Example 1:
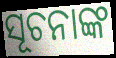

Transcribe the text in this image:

ସୂଚନାଙ୍କ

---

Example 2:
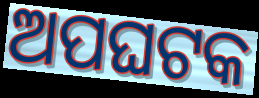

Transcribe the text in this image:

ଅପଘଟକ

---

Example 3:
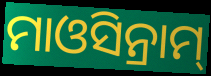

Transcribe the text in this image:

ମାଓସିନ୍ରାମ୍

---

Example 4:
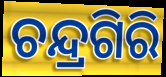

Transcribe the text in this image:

ଚନ୍ଦ୍ରଗିରି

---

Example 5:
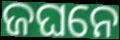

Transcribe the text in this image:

ଜଘନେ